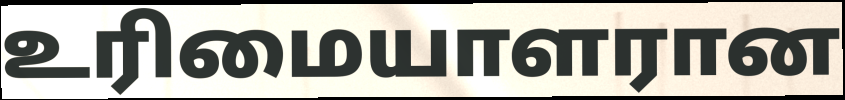
உரிமையாளரான